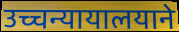
उच्चन्यायालयाने